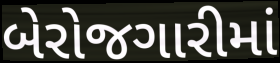
બેરોજગારીમાં